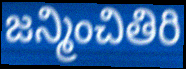
జన్మించితిరి